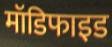
मॉडिफाइड